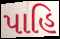
પાહિ